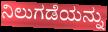
ನಿಲುಗಡೆಯನ್ನು